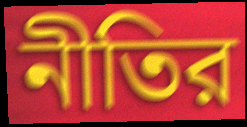
নীতির